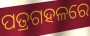
ପତ୍ରଗହଳରେ